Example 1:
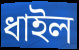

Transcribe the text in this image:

ধাইল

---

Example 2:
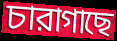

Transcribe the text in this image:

চারাগাছে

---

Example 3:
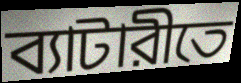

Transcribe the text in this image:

ব্যাটারীতে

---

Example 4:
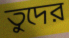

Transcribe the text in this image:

তুদের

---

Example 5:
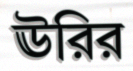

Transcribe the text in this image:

ঊরির